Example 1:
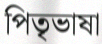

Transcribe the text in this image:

পিতৃভাষা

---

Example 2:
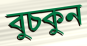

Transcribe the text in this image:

বুচকুন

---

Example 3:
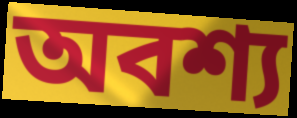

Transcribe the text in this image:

অবশ্য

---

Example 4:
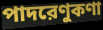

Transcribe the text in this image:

পাদরেণুকণা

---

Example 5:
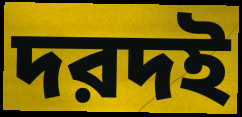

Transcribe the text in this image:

দরদই